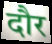
दौर